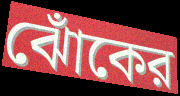
ঝোঁকের